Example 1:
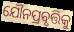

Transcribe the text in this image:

ଯୌନପ୍ରବୃତ୍ତିକୁ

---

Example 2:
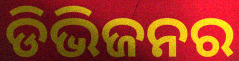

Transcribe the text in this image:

ଡିଭିଜନର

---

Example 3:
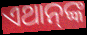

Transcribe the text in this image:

ଏଥାନ୍‍ଙ୍କ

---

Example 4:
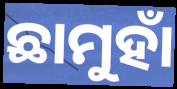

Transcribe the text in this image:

ଛାମୁହାଁ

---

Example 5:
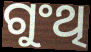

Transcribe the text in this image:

ଗୁଂଥି